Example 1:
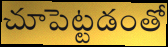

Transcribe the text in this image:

చూపెట్టడంతో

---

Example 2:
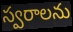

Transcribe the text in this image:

స్వరాలను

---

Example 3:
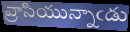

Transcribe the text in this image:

వ్రాసియున్నాఁడు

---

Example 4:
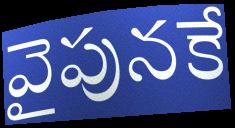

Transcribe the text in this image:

వైపునకే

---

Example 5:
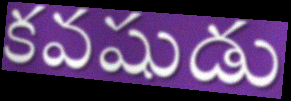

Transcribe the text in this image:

కవషుడు